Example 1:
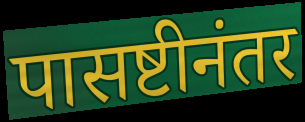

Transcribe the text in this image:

पासष्टीनंतर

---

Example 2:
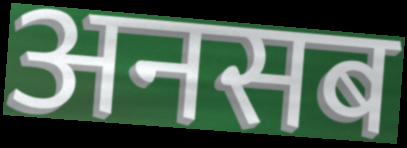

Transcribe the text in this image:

अनसब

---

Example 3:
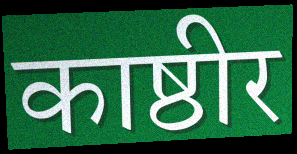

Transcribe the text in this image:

काष्ठीर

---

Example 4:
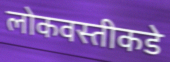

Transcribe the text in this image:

लोकवस्तीकडे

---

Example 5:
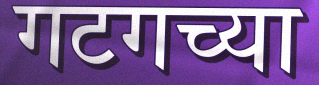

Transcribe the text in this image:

गटगच्या